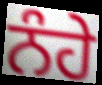
ਨੰਹੇ